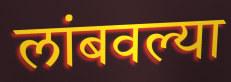
लांबवल्या